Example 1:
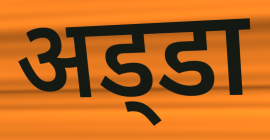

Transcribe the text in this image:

अड्‍डा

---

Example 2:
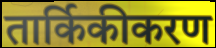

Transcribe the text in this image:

तार्किकीकरण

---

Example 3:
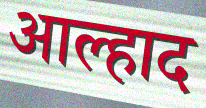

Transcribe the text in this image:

आल्हाद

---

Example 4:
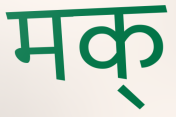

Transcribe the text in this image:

मक्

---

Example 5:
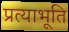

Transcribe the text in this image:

प्रत्याभूति